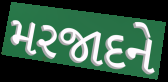
મરજાદને